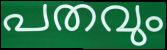
പതവും